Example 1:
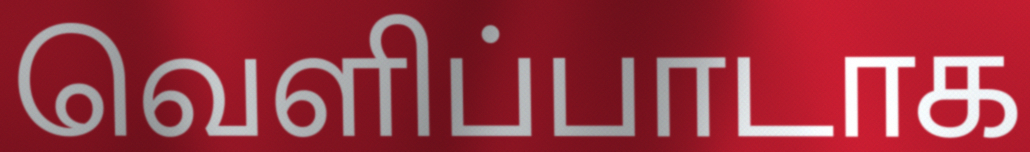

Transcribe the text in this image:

வெளிப்பாடாக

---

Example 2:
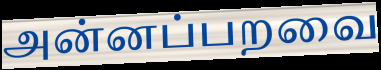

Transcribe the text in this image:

அன்னப்பறவை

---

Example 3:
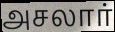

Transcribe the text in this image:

அசலார்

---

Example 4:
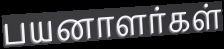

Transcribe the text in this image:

பயனாளர்கள்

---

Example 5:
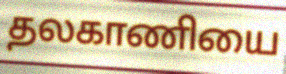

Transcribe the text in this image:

தலகாணியை